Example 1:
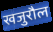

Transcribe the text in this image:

खजुरौल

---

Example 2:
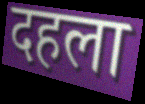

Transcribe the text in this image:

दहला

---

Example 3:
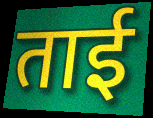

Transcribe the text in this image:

ताई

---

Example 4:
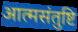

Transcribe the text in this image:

आत्मसंतुष्टि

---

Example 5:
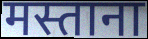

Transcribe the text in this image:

मस्ताना